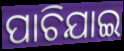
ପାଚିଯାଇ